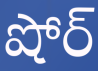
షోర్